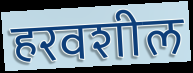
हरवशील